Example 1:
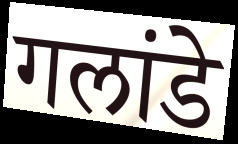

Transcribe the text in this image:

गलांडे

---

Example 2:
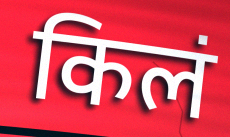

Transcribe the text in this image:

किलं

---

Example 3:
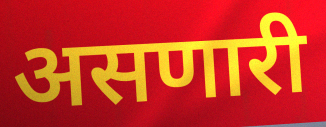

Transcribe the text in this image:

असणारी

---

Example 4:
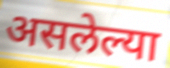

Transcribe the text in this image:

असलेल्या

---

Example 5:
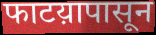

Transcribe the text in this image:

फाटय़ापासून